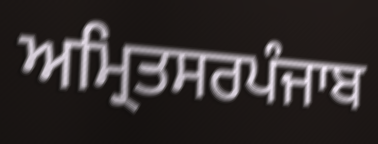
ਅਮ੍ਰਿਤਸਰਪੰਜਾਬ